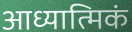
आध्यात्मिकं